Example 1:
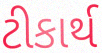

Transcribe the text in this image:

ટીકાર્થ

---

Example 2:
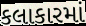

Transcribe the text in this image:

કલાકારમાં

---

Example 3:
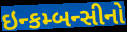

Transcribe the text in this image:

ઇન્કમ્બન્સીનો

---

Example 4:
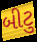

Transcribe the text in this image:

બીટુ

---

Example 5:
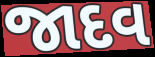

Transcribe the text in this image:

જાદવ